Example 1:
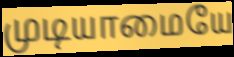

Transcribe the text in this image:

முடியாமையே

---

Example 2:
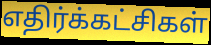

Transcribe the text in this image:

எதிர்க்கட்சிகள்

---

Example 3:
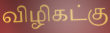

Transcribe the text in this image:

விழிகட்கு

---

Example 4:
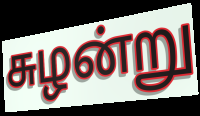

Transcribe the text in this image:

சுழன்று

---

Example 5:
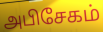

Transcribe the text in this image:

அபிசேகம்